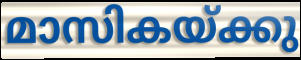
മാസികയ്ക്കു